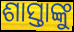
ଶାସ୍ତାଙ୍କୁ